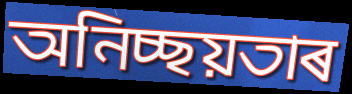
অনিচ্ছয়তাৰ